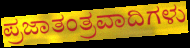
ಪ್ರಜಾತಂತ್ರವಾದಿಗಳು